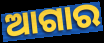
ଆଗାର